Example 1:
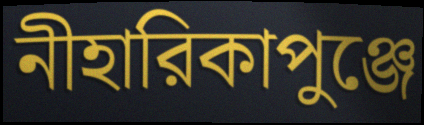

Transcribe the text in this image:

নীহারিকাপুঞ্জে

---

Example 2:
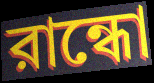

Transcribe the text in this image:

রান্ধো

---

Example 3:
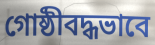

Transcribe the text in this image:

গোষ্ঠীবদ্ধভাবে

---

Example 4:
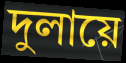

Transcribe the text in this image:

দুলায়ে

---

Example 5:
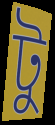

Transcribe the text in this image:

টু